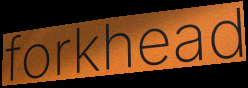
forkhead